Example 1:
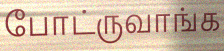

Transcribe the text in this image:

போட்ருவாங்க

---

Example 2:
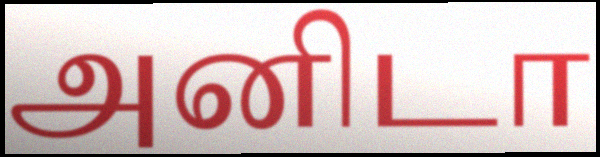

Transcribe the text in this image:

அனிடா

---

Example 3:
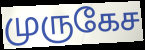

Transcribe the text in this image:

முருகேச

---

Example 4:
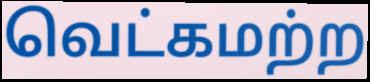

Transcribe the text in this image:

வெட்கமற்ற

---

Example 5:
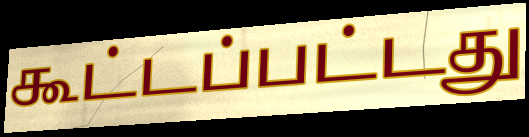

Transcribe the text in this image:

கூட்டப்பட்டது